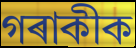
গৰাকীক